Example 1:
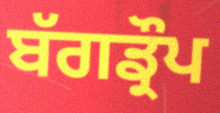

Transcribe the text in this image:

ਬੱਗਡ੍ਰੌਪ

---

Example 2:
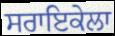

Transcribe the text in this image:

ਸਰਾਇਕੇਲਾ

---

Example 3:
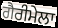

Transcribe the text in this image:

ਗੈਰੀਮੇਲਾ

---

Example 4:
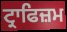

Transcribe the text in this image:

ਟ੍ਰਾਫਿਜ਼ਮ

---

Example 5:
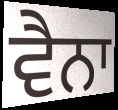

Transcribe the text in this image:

ਵੈਨਾ